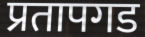
प्रतापगड